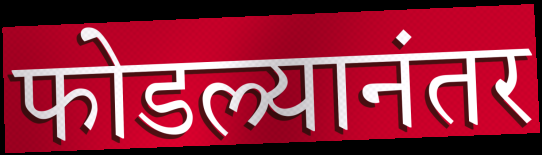
फोडल्यानंतर